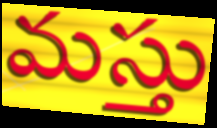
మస్తు